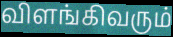
விளங்கிவரும்